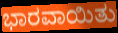
ಭಾರವಾಯಿತು